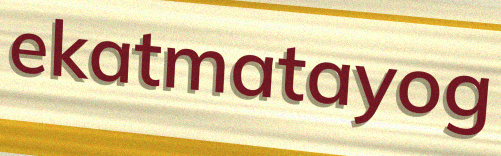
ekatmatayog